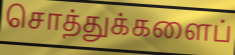
சொத்துக்களைப்